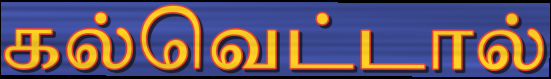
கல்வெட்டால்